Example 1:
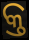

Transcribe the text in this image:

କ୍ତ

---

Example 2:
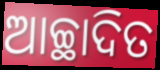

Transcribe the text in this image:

ଆଚ୍ଛାଦିତ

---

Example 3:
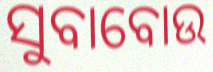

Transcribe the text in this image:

ସୁବାବୋଉ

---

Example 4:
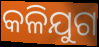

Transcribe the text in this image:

କଳିଯୁଗ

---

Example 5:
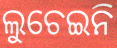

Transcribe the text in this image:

ଲୁଚେଇନି